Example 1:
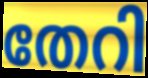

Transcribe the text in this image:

തേറി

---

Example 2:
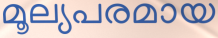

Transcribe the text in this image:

മൂല്യപരമായ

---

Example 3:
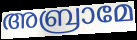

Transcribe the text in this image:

അബ്രാമേ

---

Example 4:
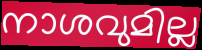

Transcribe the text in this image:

നാശവുമില്ല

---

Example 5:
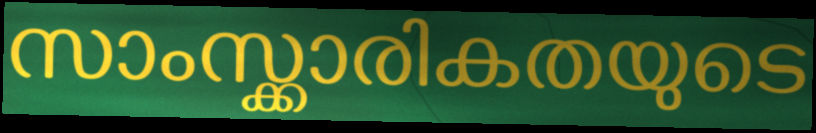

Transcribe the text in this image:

സാംസ്ക്കാരികതയുടെ